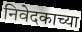
निवेदकाच्या